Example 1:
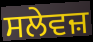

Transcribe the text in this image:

ਸਲੇਵਜ਼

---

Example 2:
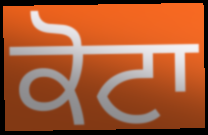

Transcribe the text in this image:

ਕੋਟਾ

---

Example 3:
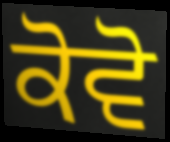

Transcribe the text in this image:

ਕੋਵੋ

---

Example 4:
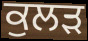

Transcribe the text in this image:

ਕੁਲੜ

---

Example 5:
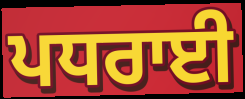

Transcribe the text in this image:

ਪਧਰਾਈ